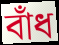
বাঁধ